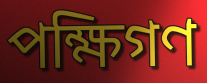
পক্ষিগণ